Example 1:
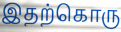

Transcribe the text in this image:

இதற்கொரு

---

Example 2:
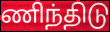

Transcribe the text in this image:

ணிந்திடு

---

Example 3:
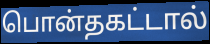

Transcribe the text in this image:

பொன்தகட்டால்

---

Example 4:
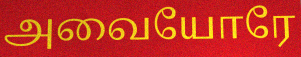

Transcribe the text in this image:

அவையோரே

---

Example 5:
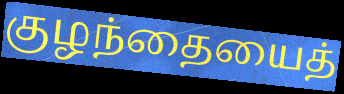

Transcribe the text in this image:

குழந்தையைத்